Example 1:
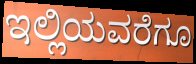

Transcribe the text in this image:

ಇಲ್ಲಿಯವರೆಗೂ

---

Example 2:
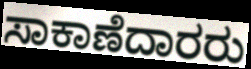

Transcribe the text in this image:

ಸಾಕಾಣೆದಾರರು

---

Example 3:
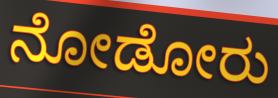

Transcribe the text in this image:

ನೋಡೋರು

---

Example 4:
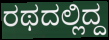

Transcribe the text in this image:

ರಥದಲ್ಲಿದ್ದ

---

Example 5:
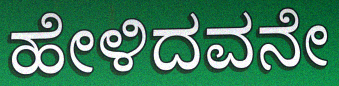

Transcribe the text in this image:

ಹೇಳಿದವನೇ